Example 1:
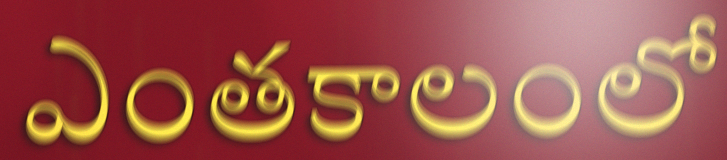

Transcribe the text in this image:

ఎంతకాలంలో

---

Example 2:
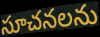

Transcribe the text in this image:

సూచనలను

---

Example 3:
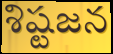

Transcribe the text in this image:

శిష్టజన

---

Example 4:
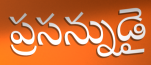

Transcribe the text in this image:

ప్రసన్నుడై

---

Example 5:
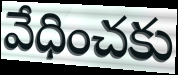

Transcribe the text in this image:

వేధించకు